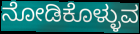
ನೋಡಿಕೊಳ್ಳುವ